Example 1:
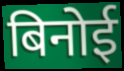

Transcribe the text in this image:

बिनोई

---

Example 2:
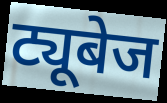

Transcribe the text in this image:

ट्यूबेज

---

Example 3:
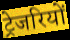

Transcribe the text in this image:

ट्रेजरियों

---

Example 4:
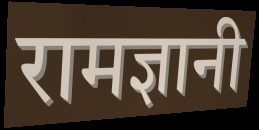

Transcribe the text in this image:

रामज्ञानी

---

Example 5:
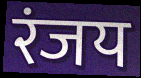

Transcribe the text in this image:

रंजय